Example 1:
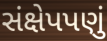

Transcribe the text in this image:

સંક્ષેપપણું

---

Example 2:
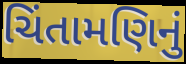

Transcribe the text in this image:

ચિંતામણિનું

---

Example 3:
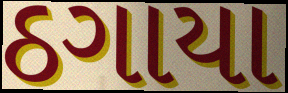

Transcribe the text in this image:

ઠગાયા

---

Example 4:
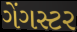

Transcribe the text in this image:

ગેંગસ્ટર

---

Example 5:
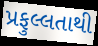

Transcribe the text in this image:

પ્રફુલ્લતાથી